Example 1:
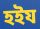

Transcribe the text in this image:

হইয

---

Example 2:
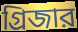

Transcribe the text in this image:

গ্রিজার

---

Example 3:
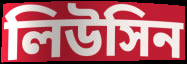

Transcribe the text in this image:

লিউসিন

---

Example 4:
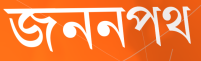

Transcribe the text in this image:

জননপথ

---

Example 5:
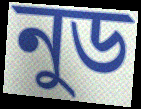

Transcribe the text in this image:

নুড